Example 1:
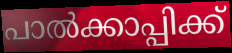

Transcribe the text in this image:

പാൽക്കാപ്പിക്ക്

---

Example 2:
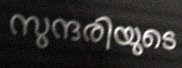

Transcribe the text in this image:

സുന്ദരിയുടെ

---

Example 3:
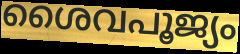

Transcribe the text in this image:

ശൈവപൂജ്യം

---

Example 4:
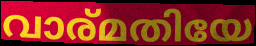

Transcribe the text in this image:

വാര്മതിയേ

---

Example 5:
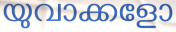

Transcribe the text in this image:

യുവാക്കളോ